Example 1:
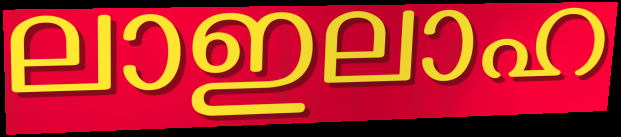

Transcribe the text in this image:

ലാഇലാഹ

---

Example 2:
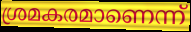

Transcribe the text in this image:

ശ്രമകരമാണെന്ന്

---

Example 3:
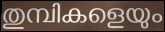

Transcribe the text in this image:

തുമ്പികളെയും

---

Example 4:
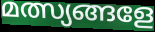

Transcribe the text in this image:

മത്സ്യങ്ങളേ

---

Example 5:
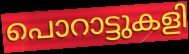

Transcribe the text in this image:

പൊറാട്ടുകളി